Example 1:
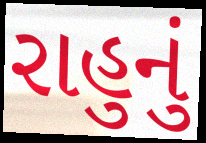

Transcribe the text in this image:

રાહુનું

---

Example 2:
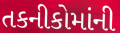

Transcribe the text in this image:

તકનીકોમાંની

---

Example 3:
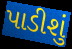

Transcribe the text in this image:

પાડીશું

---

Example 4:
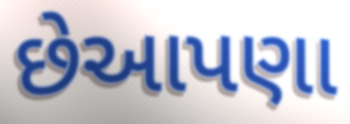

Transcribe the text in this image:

છેઆપણા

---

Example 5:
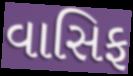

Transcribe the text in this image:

વાસિફ